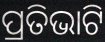
ପ୍ରତିଭାଟି